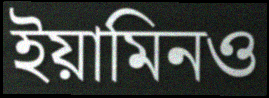
ইয়ামিনও